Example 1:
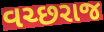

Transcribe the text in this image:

વચ્છરાજ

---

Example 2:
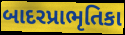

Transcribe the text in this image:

બાદરપ્રાભૃતિકા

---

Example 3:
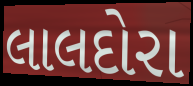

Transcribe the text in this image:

લાલદોરા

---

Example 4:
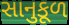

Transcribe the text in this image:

સાનુકૂળ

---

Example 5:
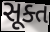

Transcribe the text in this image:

સૂક્ત